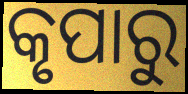
କୃପାରୁ